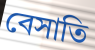
বেসাতি